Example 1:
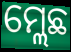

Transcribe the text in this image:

ମ୍ଲେଛ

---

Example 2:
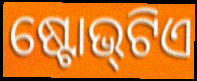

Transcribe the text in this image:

ଷ୍ଟୋଭ୍‌ଟିଏ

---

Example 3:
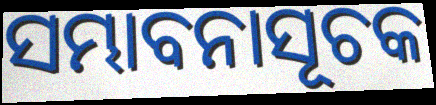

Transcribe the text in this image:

ସମ୍ଭାବନାସୂଚକ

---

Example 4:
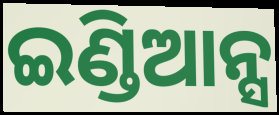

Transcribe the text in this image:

ଇଣ୍ଡିଆନ୍ସ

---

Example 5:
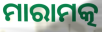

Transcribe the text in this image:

ମାରାମତ୍କ